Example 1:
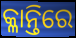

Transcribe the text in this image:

କ୍ଳାନ୍ତିରେ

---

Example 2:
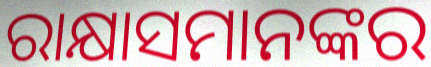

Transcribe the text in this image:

ରାକ୍ଷାସମାନଙ୍କର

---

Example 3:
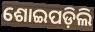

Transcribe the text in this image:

ଶୋଇପଡ଼ିଲି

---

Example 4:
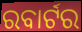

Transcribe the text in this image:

ରବାର୍ଟର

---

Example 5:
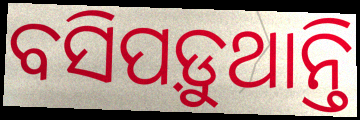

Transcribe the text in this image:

ବସିପଡ଼ୁଥାନ୍ତି